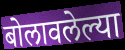
बोलावलेल्या